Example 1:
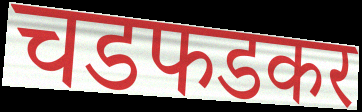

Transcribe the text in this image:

चडफडकर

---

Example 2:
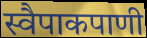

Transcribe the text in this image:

स्वैपाकपाणी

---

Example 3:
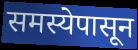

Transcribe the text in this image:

समस्येपासून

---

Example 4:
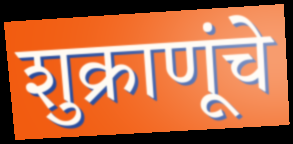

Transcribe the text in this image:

शुक्राणूंचे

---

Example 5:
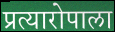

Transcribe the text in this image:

प्रत्यारोपाला